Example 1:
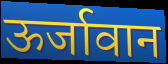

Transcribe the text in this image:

ऊर्जावान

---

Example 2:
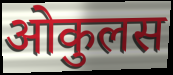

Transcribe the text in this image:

ओकुलस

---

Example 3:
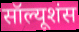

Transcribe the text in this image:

सॉल्यूशंस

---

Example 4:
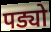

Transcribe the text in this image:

पड्यो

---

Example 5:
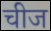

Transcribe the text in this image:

चीज